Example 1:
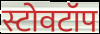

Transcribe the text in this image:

स्टोवटॉप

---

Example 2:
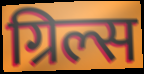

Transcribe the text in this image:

ग्रिल्स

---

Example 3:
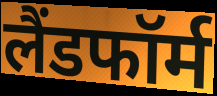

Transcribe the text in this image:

लैंडफॉर्म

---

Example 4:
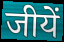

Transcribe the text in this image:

जीयें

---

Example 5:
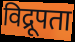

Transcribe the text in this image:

विद्रूपता